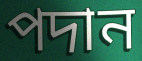
পদান